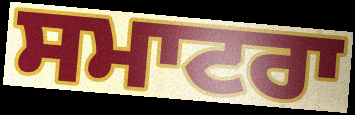
ਸਮਾਟਰਾ